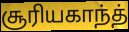
சூரியகாந்த்